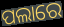
ପଲାରେ